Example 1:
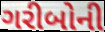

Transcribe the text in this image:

ગરીબોની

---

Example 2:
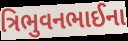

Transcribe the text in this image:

ત્રિભુવનભાઈના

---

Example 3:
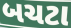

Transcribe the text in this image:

બચટા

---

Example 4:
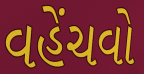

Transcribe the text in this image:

વહેંચવો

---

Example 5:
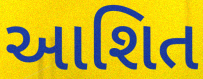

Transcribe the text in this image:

આશિત